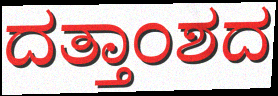
ದತ್ತಾಂಶದ